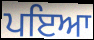
ਪਇਆ